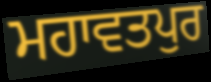
ਮਹਾਵਤਪੁਰ